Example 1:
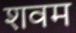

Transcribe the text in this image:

शवम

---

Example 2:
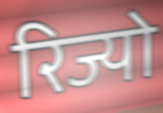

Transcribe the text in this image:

रिज्यो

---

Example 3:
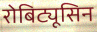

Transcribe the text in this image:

रोबिट्यूसिन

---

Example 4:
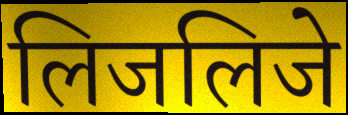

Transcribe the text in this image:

लिजलिजे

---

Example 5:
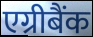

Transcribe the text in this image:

एग्रीबैंक